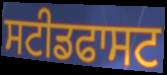
ਸਟੀਡਫਾਸਟ